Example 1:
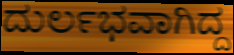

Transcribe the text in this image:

ದುರ್ಲಭವಾಗಿದ್ದ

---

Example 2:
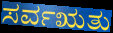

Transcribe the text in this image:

ಸರ್ವಋತು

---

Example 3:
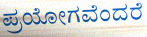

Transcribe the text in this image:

ಪ್ರಯೋಗವೆಂದರೆ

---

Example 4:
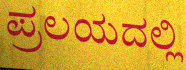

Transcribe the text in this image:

ಪ್ರಲಯದಲ್ಲಿ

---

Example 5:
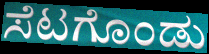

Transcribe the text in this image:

ಸೆಟಗೊಂಡು